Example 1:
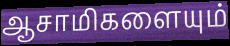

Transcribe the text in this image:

ஆசாமிகளையும்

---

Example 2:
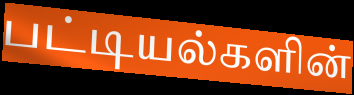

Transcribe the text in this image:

பட்டியல்களின்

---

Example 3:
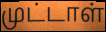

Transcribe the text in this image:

முட்டாள்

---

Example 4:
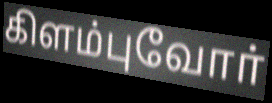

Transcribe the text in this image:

கிளம்புவோர்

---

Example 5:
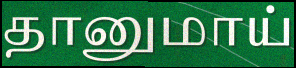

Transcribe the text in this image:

தானுமாய்